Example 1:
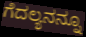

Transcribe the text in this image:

ಗೆದಲ್ಯನನ್ನೂ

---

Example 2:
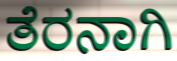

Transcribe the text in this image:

ತೆರನಾಗಿ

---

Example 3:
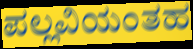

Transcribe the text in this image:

ಪಲ್ಲವಿಯಂತಹ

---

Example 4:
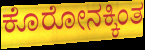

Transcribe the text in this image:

ಕೊರೋನಕ್ಕಿಂತ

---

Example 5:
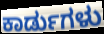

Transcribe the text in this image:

ಕಾರ್ಡುಗಳು